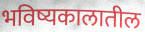
भविष्यकालातील